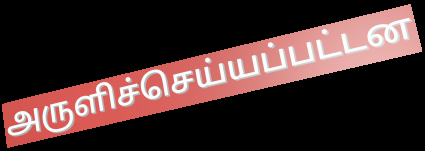
அருளிச்செய்யப்பட்டன